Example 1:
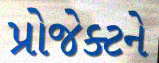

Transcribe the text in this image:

પ્રોજેક્ટને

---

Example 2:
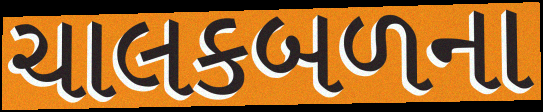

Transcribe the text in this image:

ચાલકબળના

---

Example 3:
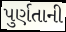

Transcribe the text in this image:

પુર્ણતાની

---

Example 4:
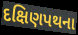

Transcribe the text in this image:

દક્ષિણપથના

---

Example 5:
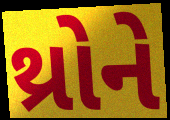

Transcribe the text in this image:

થ્રોને